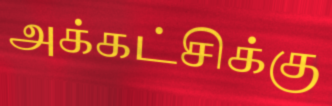
அக்கட்சிக்கு